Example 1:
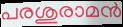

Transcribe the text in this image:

പരശുരാമൻ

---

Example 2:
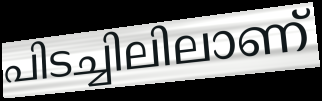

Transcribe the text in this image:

പിടച്ചിലിലാണ്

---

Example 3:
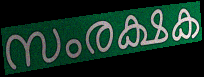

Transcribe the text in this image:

സംരക്ഷക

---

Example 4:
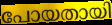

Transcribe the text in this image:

പോയതായി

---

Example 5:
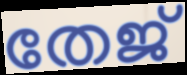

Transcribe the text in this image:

തേജ്